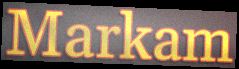
Markam